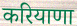
करियाणा